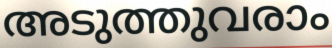
അടുത്തുവരാം